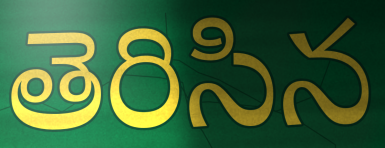
తెరిసిన